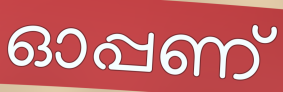
ഓപ്പണ്